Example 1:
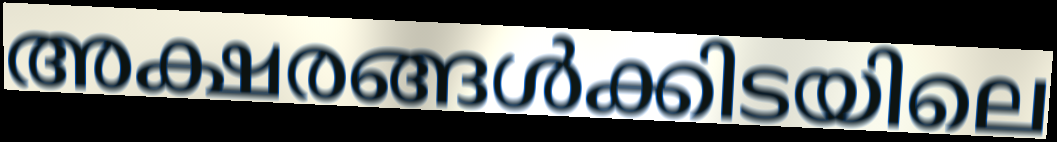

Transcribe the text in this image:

അക്ഷരങ്ങൾക്കിടയിലെ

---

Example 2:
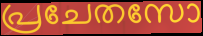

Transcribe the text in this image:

പ്രചേതസോ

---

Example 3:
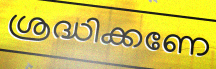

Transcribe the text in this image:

ശ്രദ്ധിക്കണേ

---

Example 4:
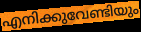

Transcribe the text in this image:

എനിക്കുവേണ്ടിയും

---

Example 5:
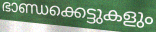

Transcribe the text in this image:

ഭാണ്ഡക്കെട്ടുകളും